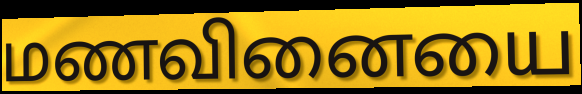
மணவினையை